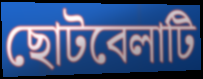
ছোটবেলাটি